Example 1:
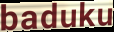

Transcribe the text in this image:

baduku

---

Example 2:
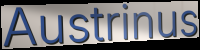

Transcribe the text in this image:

Austrinus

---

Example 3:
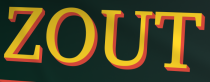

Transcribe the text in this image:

ZOUT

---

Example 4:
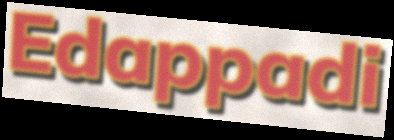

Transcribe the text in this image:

Edappadi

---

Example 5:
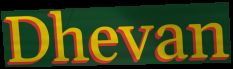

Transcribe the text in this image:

Dhevan